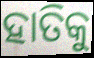
ହାତିକୁ